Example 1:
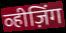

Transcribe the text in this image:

व्हीज़िंग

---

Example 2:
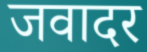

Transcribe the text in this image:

जवादर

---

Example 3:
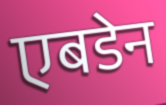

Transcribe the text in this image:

एबडेन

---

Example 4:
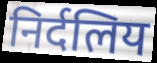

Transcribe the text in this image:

निर्दलिय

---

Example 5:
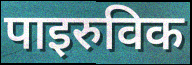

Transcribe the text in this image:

पाइरुविक